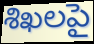
శిఖలపై